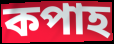
কপাহ